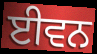
ਈਵਨ